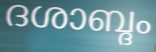
ദശാബ്ദം